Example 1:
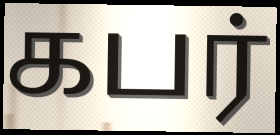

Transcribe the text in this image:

கபர்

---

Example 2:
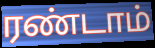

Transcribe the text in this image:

ரண்டாம்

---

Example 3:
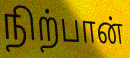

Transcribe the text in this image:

நிற்பான்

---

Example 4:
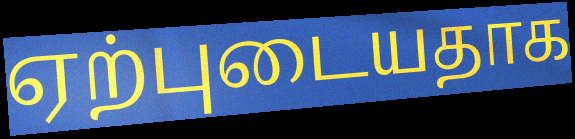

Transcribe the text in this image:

ஏற்புடையதாக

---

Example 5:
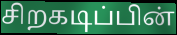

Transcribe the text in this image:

சிறகடிப்பின்